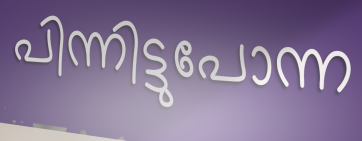
പിന്നിട്ടുപോന്ന